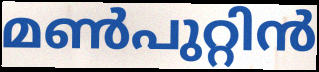
മൺപുറ്റിൻ